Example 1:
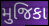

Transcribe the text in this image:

મુજિકા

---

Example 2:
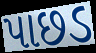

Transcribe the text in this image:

પાછડ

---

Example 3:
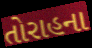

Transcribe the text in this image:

તોરાહના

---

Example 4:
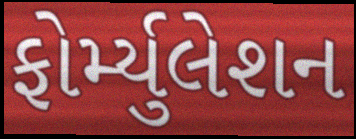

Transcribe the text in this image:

ફોર્મ્યુલેશન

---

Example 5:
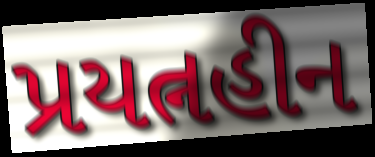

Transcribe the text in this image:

પ્રયત્નહીન